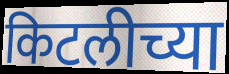
किटलीच्या